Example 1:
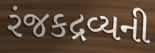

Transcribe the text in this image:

રંજકદ્રવ્યની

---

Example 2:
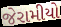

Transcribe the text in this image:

જેરામીયો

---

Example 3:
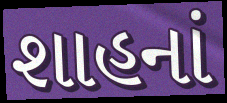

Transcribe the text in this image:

શાહનાં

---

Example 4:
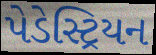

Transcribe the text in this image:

પેડેસ્ટ્રિયન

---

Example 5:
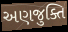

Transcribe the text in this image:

અણજુક્તિ